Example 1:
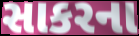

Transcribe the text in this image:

સાકરના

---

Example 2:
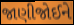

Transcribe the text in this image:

જાણીજોઈને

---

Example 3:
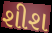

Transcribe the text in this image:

શીશ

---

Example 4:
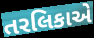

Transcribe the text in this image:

તરલિકાએ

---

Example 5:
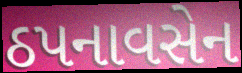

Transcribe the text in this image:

ઠપનાવસેન